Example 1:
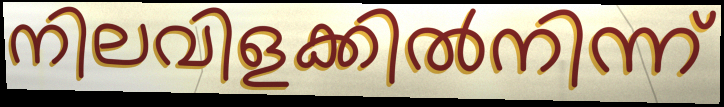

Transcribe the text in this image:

നിലവിളക്കിൽനിന്ന്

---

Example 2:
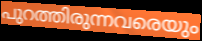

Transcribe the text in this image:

പുറത്തിരുന്നവരെയും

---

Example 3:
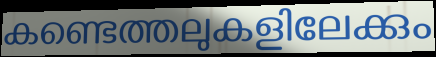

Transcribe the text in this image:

കണ്ടെത്തലുകളിലേക്കും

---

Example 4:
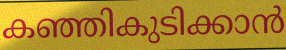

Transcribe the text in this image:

കഞ്ഞികുടിക്കാൻ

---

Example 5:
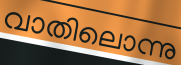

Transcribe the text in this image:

വാതിലൊന്നു